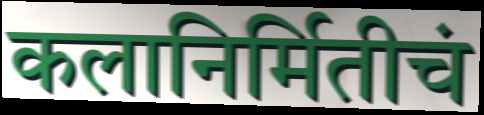
कलानिर्मितीचं